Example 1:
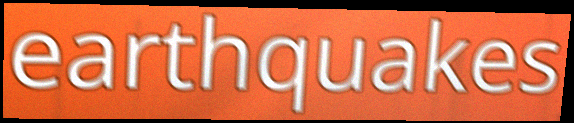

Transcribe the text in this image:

earthquakes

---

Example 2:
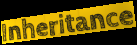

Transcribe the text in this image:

Inheritance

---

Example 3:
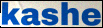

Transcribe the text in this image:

kashe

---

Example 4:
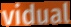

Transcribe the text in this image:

vidual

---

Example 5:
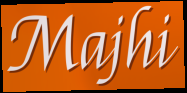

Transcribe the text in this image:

Majhi